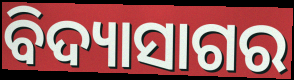
ବିଦ୍ୟାସାଗର